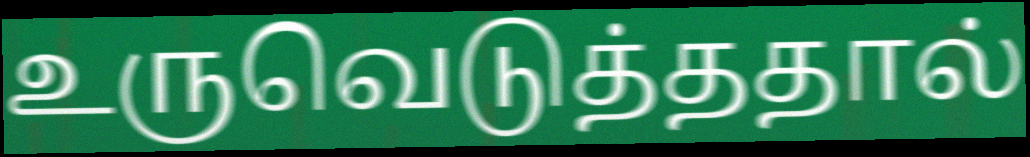
உருவெடுத்ததால்